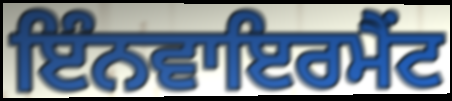
ਇੰਨਵਾਇਰਮੈਂਟ